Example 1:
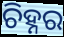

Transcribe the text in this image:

ଚିହ୍ନର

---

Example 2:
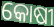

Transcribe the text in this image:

କୋଷୀ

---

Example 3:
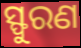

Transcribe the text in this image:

ସ୍ଫୁରଣ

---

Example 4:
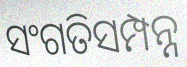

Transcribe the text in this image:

ସଂଗତିସମ୍ପନ୍ନ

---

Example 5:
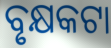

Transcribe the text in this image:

ବୃକ୍ଷକଟା